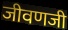
जीवणजी